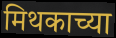
मिथकाच्या